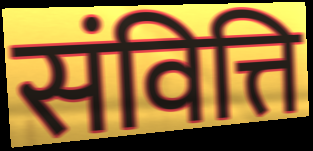
संवित्ति